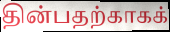
தின்பதற்காகக்